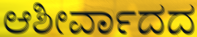
ಆಶೀರ್ವಾದದ